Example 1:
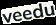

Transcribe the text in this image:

veedu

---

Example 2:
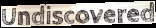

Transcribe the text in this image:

Undiscovered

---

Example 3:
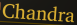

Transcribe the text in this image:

Chandra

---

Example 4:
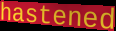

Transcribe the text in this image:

hastened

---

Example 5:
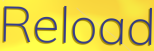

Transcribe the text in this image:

Reload